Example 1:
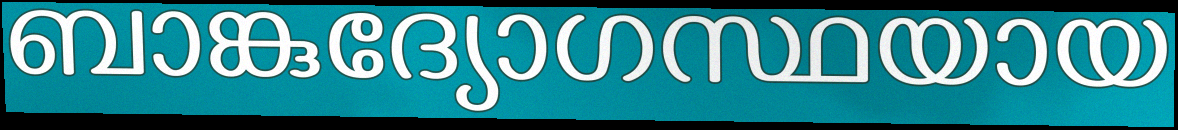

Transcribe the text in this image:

ബാങ്കുദ്യോഗസ്ഥയായ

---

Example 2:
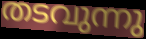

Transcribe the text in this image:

തടവുന്നു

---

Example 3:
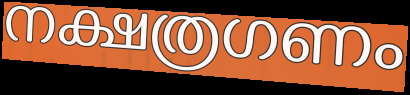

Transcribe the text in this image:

നക്ഷത്രഗണം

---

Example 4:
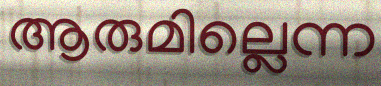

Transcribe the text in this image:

ആരുമില്ലെന്ന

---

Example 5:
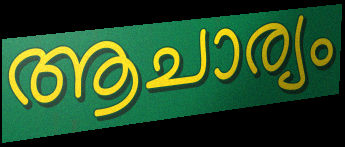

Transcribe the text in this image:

ആചാര്യം